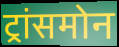
ट्रांसमोन